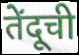
तेंदूची